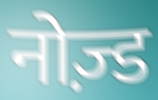
नोज़्ड